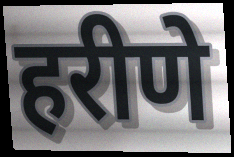
हरीणे